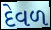
દેવળ